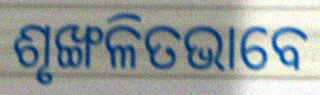
ଶୃଙ୍ଖଳିତଭାବେ